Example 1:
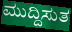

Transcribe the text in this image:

ಮುದ್ದಿಸುತ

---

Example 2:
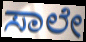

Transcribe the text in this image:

ಸಾಲೇ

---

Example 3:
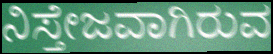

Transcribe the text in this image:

ನಿಸ್ತೇಜವಾಗಿರುವ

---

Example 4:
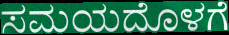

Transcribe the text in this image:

ಸಮಯದೊಳಗೆ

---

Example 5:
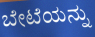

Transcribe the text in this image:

ಬೇಟೆಯನ್ನು